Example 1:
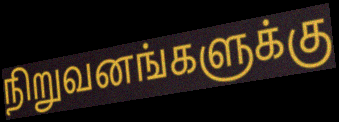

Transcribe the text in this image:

நிறுவனங்களுக்கு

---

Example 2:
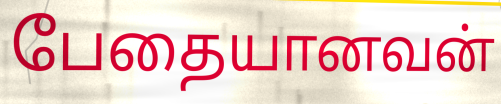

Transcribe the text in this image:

பேதையானவன்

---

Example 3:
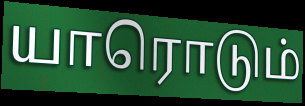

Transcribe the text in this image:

யாரொடும்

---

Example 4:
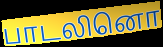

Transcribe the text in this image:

பாடலினொ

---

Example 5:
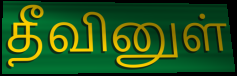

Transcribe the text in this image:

தீவினுள்